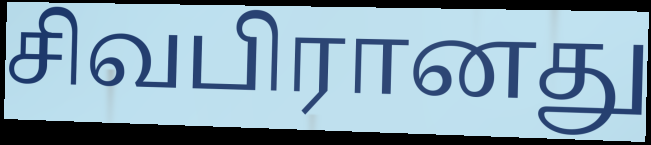
சிவபிரானது